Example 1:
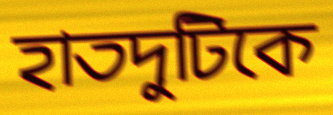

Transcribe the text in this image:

হাতদুটিকে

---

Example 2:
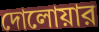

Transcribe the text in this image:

দোলোয়ার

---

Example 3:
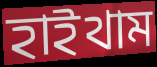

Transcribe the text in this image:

হাইথাম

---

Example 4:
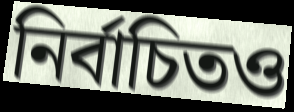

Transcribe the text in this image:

নির্বাচিতও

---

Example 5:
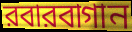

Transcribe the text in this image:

রবারবাগান